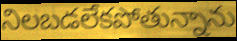
నిలబడలేకపోతున్నాను